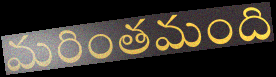
మరింతమంది